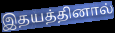
இதயத்தினால்